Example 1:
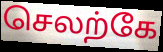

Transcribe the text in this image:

செலற்கே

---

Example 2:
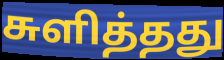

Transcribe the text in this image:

சுளித்தது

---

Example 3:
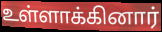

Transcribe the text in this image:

உள்ளாக்கினார்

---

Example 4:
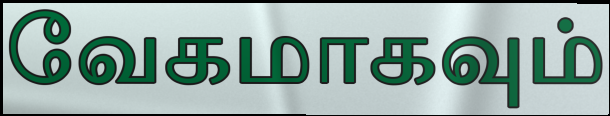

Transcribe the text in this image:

வேகமாகவும்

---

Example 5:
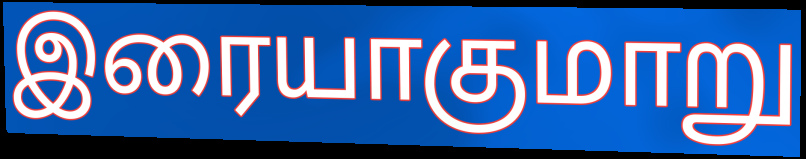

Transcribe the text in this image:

இரையாகுமாறு